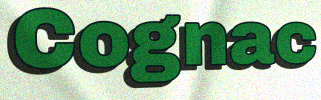
Cognac